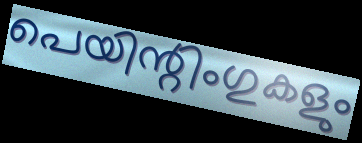
പെയിന്റിംഗുകളും